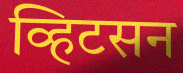
व्हिटसन